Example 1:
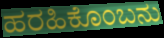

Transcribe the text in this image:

ಹರಹಿಕೊಂಬನು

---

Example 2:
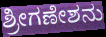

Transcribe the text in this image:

ಶ್ರೀಗಣೇಶನು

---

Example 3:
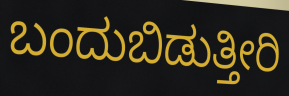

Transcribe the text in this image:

ಬಂದುಬಿಡುತ್ತೀರಿ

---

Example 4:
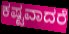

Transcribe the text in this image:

ಕಷ್ಟವಾದರೆ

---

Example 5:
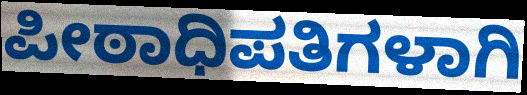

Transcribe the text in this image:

ಪೀಠಾಧಿಪತಿಗಳಾಗಿ